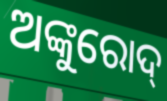
ଅଙ୍କୁରୋଦ୍